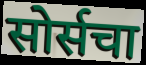
सोर्सचा